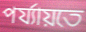
পৰ্য্যায়তে